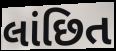
લાંછિત